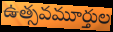
ఉత్సవమూర్తుల